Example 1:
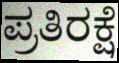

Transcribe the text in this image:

ಪ್ರತಿರಕ್ಷೆ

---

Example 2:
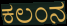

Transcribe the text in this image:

ಕಲಂನ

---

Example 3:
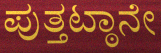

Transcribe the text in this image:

ಪುತ್ತಟ್ಠಾನೇ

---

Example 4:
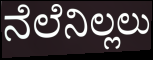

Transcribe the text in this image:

ನೆಲೆನಿಲ್ಲಲು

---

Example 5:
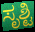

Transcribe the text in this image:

ಸೃಶ್ಟಿ